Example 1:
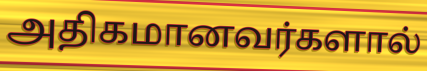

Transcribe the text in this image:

அதிகமானவர்களால்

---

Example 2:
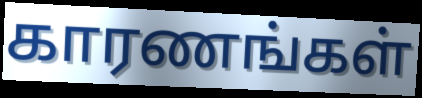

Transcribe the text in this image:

காரணங்கள்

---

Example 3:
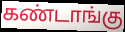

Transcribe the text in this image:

கண்டாங்கு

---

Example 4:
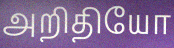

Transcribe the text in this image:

அறிதியோ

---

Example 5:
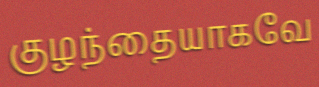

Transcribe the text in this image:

குழந்தையாகவே